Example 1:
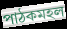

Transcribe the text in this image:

পাঠকমহল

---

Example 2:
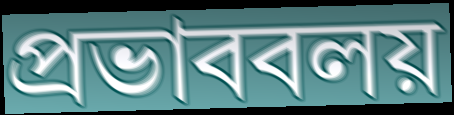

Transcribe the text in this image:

প্রভাববলয়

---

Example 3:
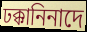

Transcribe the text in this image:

ঢক্কানিনাদে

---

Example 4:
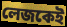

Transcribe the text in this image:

লেজকেই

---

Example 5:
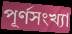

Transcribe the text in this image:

পূর্ণসংখ্যা